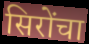
सिरोंचा